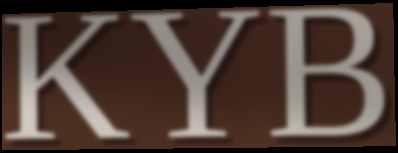
KYB